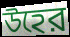
উহের